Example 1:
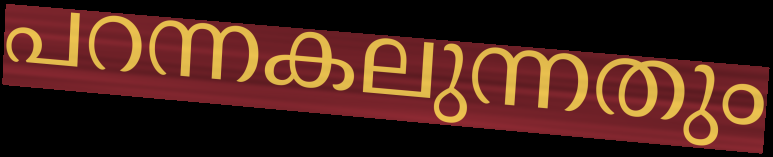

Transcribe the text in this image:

പറന്നകലുന്നതും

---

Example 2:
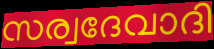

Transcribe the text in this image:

സര്വദേവാദി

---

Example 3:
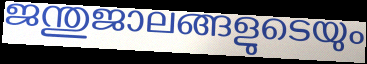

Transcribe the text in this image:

ജന്തുജാലങ്ങളുടെയും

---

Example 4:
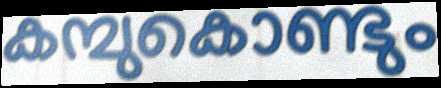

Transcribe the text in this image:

കമ്പുകൊണ്ടും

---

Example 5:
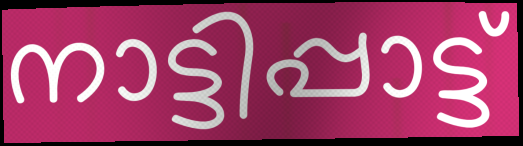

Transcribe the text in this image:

നാട്ടിപ്പാട്ട്